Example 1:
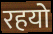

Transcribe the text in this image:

रहयो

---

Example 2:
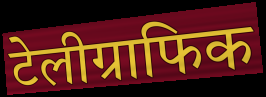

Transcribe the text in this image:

टेलीग्राफिक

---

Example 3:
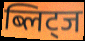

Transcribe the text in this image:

ब्लिट्ज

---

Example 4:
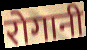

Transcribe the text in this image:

रोगानी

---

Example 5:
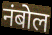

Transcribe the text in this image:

नंबोल